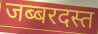
जब्बरदस्त